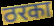
ठरका